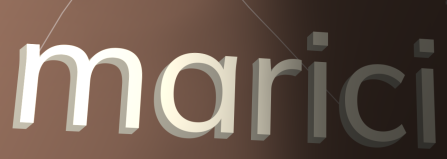
marici